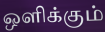
ஒளிக்கும்